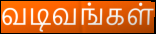
வடிவங்கள்